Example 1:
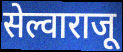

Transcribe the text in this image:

सेल्वाराजू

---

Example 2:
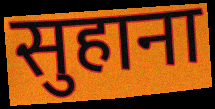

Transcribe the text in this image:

सुहाना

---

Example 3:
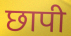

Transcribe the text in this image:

छापी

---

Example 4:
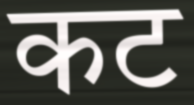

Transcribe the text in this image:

कट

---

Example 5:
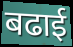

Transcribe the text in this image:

बढाई